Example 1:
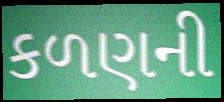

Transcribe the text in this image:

કળણની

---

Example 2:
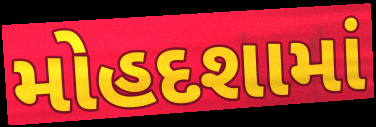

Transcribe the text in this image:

મોહદશામાં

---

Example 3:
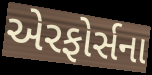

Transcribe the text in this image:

એરફોર્સના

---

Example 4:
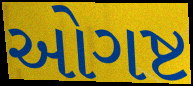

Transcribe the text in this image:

ઓગષ્ટ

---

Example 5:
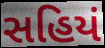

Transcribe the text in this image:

સહિયં